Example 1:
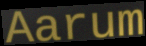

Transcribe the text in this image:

Aarum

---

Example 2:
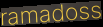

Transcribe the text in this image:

ramadoss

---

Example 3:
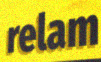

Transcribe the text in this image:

relam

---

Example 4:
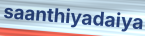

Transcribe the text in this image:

saanthiyadaiya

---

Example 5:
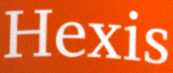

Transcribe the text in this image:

Hexis